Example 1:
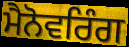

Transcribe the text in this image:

ਮੈਨੋਵਰਿੰਗ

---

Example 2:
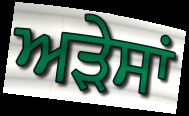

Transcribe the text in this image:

ਅੜੇਸਾਂ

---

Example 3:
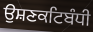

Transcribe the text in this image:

ਉਸ਼ਣਕਟਿਬੰਧੀ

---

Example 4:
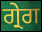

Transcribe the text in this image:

ਗ੍ਰੇਗ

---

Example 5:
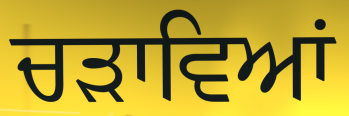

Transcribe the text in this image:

ਚੜਾਵਿਆਂ